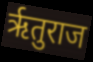
ऋृतुराज